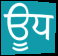
ਊਧ